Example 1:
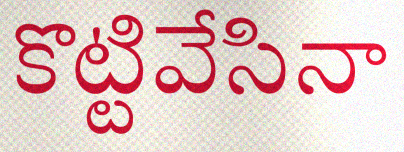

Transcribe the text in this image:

కొట్టివేసినా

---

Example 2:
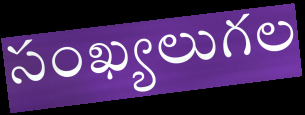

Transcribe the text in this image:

సంఖ్యలుగల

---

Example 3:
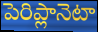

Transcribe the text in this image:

పెరిప్లానెటా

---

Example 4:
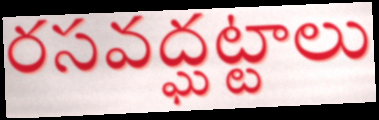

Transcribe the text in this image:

రసవద్ఘట్టాలు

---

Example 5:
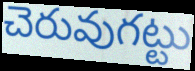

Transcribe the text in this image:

చెరువుగట్టు